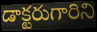
డాక్టరుగారిని